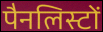
पैनलिस्टों